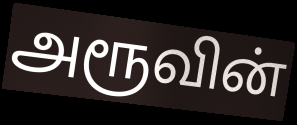
அரூவின்